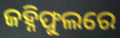
ଜହ୍ନିଫୁଲରେ